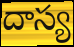
దాస్య